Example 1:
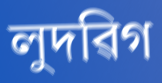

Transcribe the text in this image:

লুদৱিগ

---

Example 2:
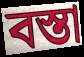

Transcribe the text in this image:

বস্তা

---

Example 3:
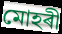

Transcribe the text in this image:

মোহৰী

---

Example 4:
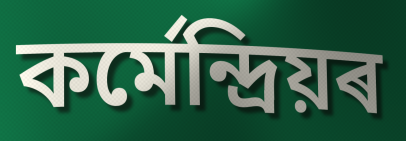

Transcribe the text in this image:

কৰ্মেন্দ্ৰিয়ৰ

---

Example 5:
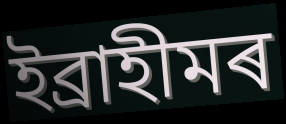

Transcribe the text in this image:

ইব্ৰাহীমৰ